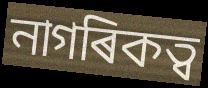
নাগৰিকত্ব